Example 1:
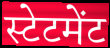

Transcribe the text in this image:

स्टेटमेंट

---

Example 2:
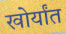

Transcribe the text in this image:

खोर्यांत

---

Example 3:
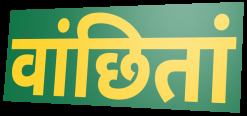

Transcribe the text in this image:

वांछितां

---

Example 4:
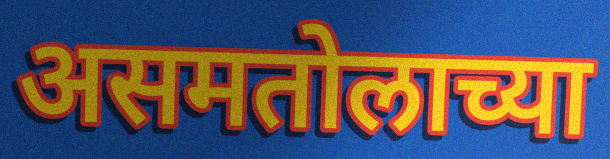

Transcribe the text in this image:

असमतोलाच्या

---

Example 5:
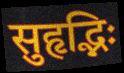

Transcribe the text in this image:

सुहृद्भिः